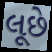
લૂછે